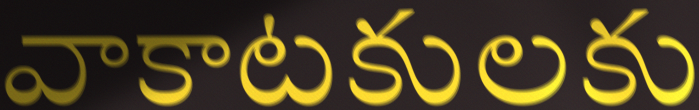
వాకాటకులకు